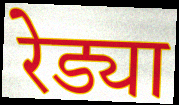
रेड्या